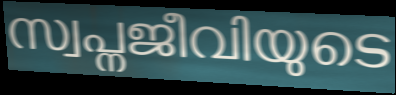
സ്വപ്നജീവിയുടെ